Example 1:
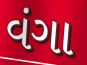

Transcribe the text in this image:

વંગા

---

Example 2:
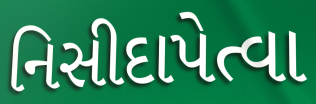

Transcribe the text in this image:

નિસીદાપેત્વા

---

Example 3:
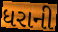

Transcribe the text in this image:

ધરાની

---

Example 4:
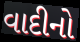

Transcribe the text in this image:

વાદીનો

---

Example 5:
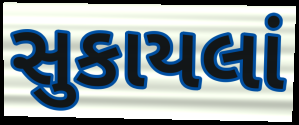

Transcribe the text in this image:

સુકાયલાં